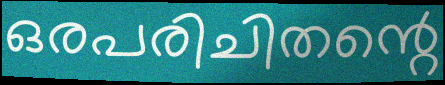
ഒരപരിചിതന്റെ